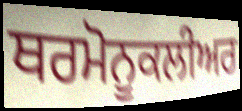
ਥਰਮੋਨੂਕਲੀਅਰ